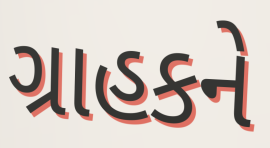
ગ્રાહકને